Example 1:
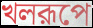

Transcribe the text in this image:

খলরূপে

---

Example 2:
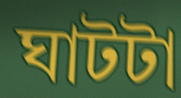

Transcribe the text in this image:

ঘাটটা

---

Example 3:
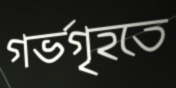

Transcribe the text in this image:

গর্ভগৃহতে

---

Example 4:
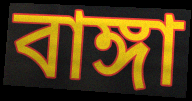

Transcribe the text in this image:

বাঙ্গা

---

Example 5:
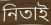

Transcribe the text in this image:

নিতাই